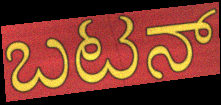
ಬಟನ್